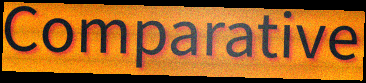
Comparative